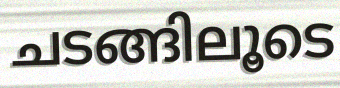
ചടങ്ങിലൂടെ